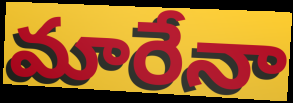
మారేనా